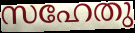
സഹേതു